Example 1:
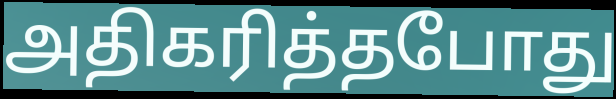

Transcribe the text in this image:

அதிகரித்தபோது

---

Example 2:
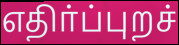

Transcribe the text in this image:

எதிர்ப்புறச்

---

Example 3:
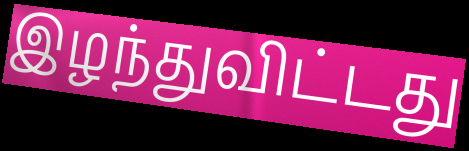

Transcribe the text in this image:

இழந்துவிட்டது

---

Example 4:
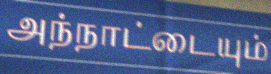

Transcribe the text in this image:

அந்நாட்டையும்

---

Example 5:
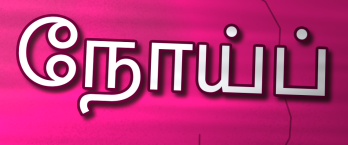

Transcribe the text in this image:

நோய்ப்